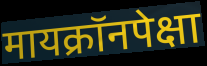
मायक्रॉनपेक्षा